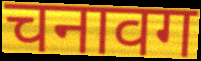
चनावग